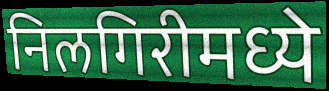
निलगिरीमध्ये